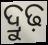
ଦ୍ରୁଢ଼